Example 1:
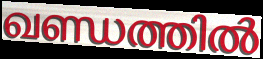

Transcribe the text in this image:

ഖണ്ഡത്തിൽ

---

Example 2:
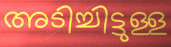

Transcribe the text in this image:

അടിച്ചിട്ടുള്ള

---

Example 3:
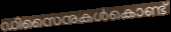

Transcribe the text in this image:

ഡിസൈനുകൾകൊണ്ട്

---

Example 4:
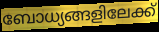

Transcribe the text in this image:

ബോധ്യങ്ങളിലേക്ക്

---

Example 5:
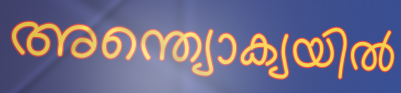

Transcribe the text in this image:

അന്ത്യൊക്യയിൽ